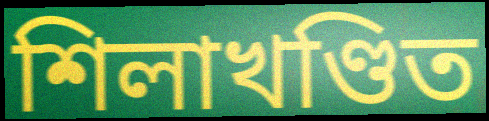
শিলাখণ্ডিত